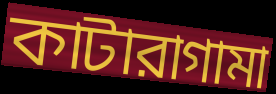
কাটারাগামা